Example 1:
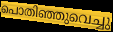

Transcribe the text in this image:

പൊതിഞ്ഞുവെച്ചു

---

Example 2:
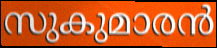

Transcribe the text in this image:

സുകുമാരൻ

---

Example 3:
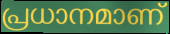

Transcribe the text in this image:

പ്രധാനമാണ്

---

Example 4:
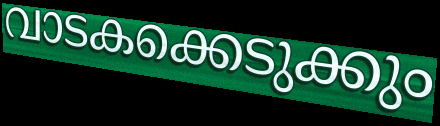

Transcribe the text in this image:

വാടകക്കെടുക്കും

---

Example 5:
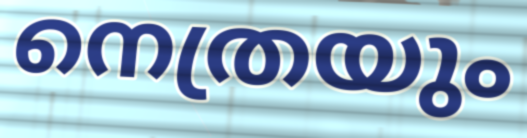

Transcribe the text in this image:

നെത്രയും